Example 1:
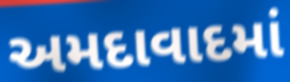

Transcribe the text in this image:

અમદાવાદમાં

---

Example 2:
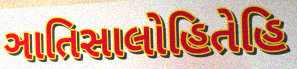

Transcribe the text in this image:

ઞાતિસાલોહિતેહિ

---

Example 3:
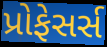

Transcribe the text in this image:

પ્રોફેસર્સ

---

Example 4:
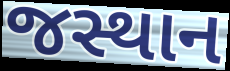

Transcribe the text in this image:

જસ્થાન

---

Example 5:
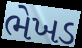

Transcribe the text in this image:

ભેખડ